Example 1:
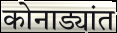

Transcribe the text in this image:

कोनाड्यांत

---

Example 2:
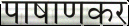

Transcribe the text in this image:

पाषाणकर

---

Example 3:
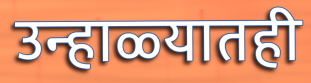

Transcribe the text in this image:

उन्हाळ्यातही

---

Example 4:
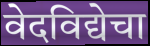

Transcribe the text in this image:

वेदविद्येचा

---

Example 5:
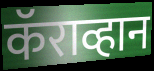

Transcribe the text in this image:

कॅराव्हान